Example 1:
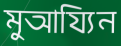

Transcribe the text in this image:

মুআয্যিন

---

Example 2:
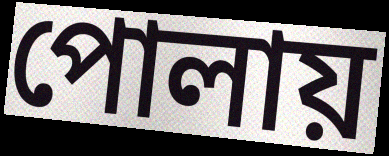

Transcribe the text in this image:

পোলায়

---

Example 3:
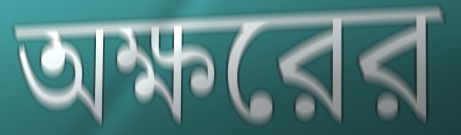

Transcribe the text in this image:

অক্ষরের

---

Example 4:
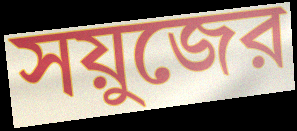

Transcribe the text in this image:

সয়ুজের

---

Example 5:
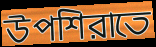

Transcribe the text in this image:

উপশিরাতে